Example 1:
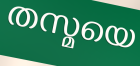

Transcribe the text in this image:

തസ്മയെ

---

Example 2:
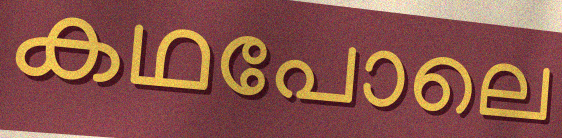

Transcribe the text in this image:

കഥപോലെ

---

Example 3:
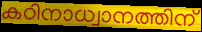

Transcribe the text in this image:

കഠിനാധ്വാനത്തിന്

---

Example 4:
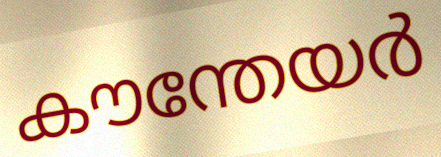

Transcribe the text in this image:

കൗന്തേയർ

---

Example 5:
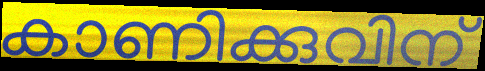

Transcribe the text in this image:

കാണിക്കുവിന്